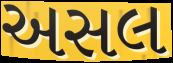
અસલ